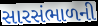
સારસંભાળની